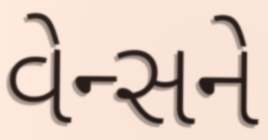
વેન્સને